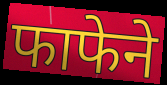
फाफेने